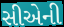
સીએની